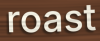
roast